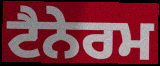
ਟੈਨੇਰਮ